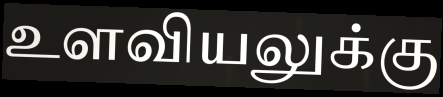
உளவியலுக்கு